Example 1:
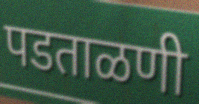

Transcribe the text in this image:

पडताळणी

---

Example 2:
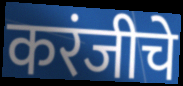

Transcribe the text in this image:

करंजीचे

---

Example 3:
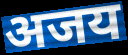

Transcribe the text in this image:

अजय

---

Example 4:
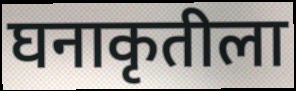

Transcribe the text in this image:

घनाकृतीला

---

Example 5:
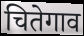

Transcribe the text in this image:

चितेगाव